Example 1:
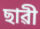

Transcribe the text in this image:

ছাৱী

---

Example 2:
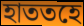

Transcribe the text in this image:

হাততহে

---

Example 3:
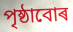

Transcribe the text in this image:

পৃষ্ঠাবোৰ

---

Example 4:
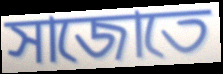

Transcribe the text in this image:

সাজোতে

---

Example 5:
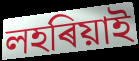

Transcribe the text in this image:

লহৰিয়াই